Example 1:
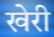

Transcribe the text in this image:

खेरी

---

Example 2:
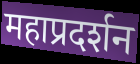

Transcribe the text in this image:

महाप्रदर्शन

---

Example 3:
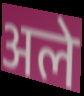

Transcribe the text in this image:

अले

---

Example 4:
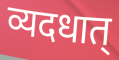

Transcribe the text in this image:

व्यदधात्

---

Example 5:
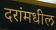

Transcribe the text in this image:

दरांमधील